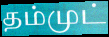
தம்முட்